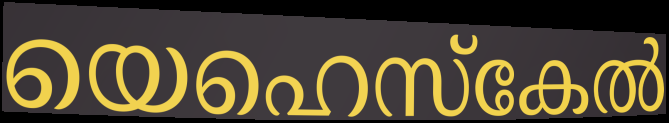
യെഹെസ്കേൽ